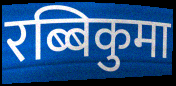
रब्बिकुमा